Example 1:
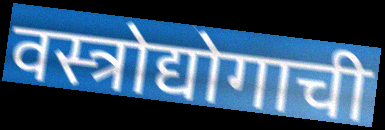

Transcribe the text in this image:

वस्त्रोद्योगाची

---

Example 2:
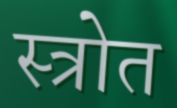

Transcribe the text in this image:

स्त्रोत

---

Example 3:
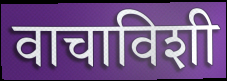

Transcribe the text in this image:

वाचाविशी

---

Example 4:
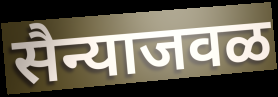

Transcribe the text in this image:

सैन्याजवळ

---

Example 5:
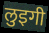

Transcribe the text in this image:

लुइगी